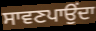
ਸਾਵਣਪਾਉਂਦਾ